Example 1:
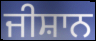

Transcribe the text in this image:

ਜੀਸ਼ਾਨ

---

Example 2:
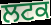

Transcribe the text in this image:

ਲਟਕ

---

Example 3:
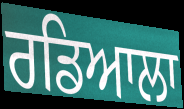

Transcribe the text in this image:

ਰਡਿਆਲਾ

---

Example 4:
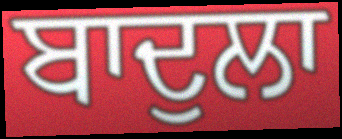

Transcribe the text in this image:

ਬਾਦੁਲਾ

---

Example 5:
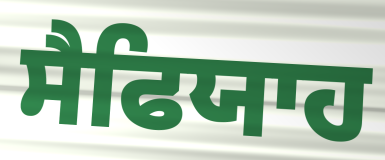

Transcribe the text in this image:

ਸੈਫਿਯਾਹ